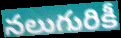
నలుగురికీ